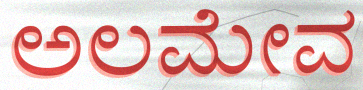
ಅಲಮೇವ